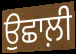
ਉਛਾਲ਼ੀ